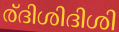
ര്ദിശിദിശി